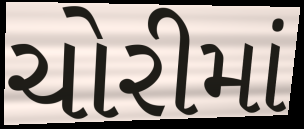
ચોરીમાં